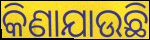
କିଣାଯାଉଛି